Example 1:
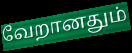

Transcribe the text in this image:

வேறானதும்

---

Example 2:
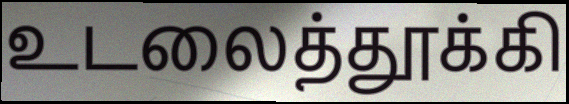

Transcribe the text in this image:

உடலைத்தூக்கி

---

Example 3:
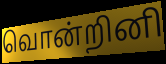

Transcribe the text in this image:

வொன்றினி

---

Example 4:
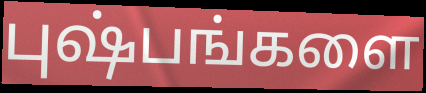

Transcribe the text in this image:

புஷ்பங்களை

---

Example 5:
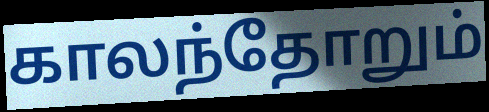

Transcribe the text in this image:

காலந்தோறும்